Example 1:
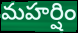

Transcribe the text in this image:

మహర్షిం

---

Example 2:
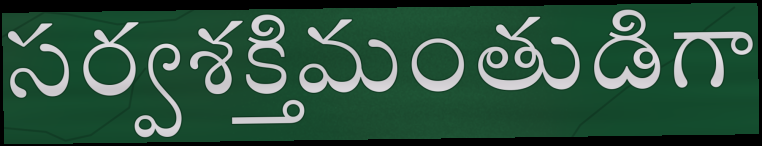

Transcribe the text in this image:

సర్వశక్తిమంతుడిగా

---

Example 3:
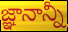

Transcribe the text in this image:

జ్ఞానాన్నీ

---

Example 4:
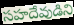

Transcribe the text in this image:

సహదేవుడిని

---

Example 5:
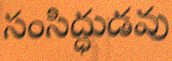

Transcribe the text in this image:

సంసిద్ధుడవు